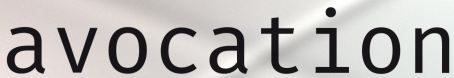
avocation